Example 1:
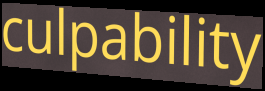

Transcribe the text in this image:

culpability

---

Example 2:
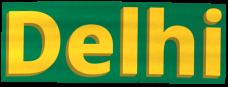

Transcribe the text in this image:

Delhi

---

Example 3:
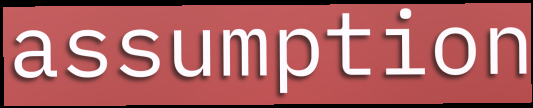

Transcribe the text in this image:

assumption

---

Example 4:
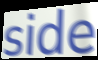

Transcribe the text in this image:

side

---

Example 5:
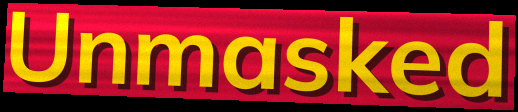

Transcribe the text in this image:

Unmasked